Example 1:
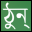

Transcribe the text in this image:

ঠুন্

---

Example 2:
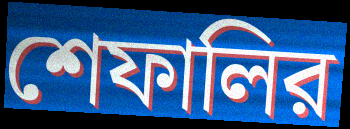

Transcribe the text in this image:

শেফালির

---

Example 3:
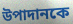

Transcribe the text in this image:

উপাদানকে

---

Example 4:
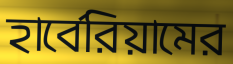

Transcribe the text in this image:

হার্বেরিয়ামের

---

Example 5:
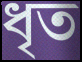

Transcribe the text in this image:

ধৃত